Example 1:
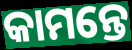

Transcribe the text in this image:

କାମନ୍ତେ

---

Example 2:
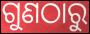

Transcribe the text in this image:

ଗୁଣଠାରୁ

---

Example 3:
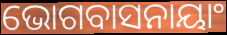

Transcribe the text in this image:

ଭୋଗବାସନାୟାଂ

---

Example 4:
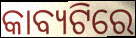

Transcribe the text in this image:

କାବ୍ୟଟିରେ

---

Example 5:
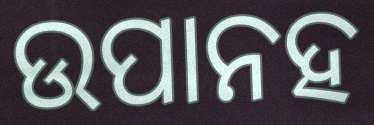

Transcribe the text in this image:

ଉପାନହ